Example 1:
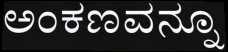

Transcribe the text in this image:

ಅಂಕಣವನ್ನೂ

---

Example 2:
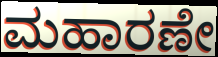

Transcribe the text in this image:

ಮಹಾರಣೇ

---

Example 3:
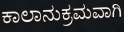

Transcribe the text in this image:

ಕಾಲಾನುಕ್ರಮವಾಗಿ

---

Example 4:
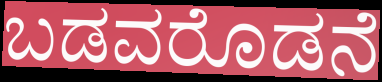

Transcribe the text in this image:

ಬಡವರೊಡನೆ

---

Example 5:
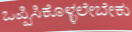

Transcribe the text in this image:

ಒಪ್ಪಿಸಿಕೊಳ್ಳಲೇಬೇಕು